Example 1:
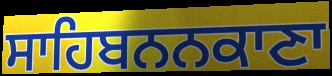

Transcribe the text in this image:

ਸਾਹਿਬਨਨਕਾਣਾ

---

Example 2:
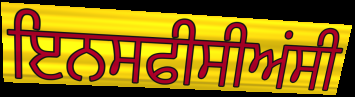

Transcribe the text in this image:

ਇਨਸਫੀਸੀਅਂਸੀ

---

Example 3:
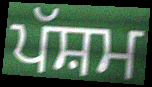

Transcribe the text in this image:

ਪੱਸ਼ਮ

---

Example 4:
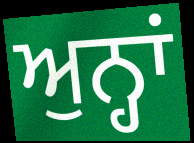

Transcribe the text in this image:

ਅੁਨ੍ਹਾਂ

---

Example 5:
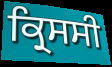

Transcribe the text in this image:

ਕ੍ਰਿਸਸੀ